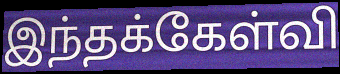
இந்தக்கேள்வி